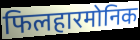
फिलहारमोनिक